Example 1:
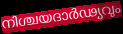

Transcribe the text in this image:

നിശ്ചയദാർഢ്യവും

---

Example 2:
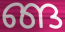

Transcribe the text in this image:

ങ്ങ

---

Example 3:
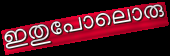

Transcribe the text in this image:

ഇതുപോലൊരു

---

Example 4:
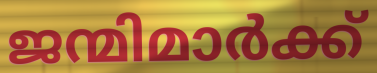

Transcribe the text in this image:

ജന്മിമാർക്ക്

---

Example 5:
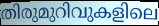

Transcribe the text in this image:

തിരുമുറിവുകളിലെ